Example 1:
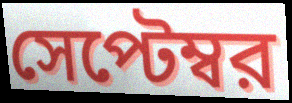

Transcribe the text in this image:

সেপ্টেম্বর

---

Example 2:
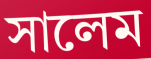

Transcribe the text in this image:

সালেম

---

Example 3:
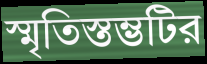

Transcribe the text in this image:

স্মৃতিস্তম্ভটির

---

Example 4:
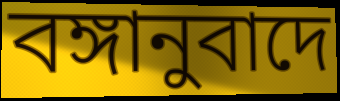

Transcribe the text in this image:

বঙ্গানুবাদে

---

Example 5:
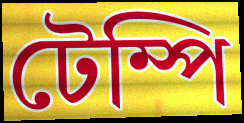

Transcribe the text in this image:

টেম্পি